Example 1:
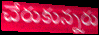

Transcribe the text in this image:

చేరుకున్నరు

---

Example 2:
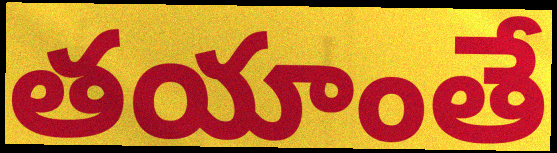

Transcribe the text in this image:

తయాంతే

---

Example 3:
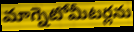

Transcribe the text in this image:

మాగ్నెటోమీటర్లను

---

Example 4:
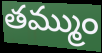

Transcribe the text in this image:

తమ్ముం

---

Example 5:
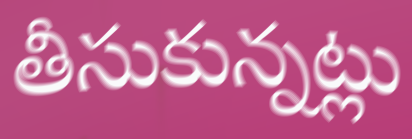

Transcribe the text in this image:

తీసుకున్నట్లు